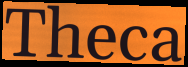
Theca